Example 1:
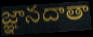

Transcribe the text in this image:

జ్ఞానదాతా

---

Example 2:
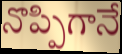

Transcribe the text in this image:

నొప్పిగానే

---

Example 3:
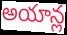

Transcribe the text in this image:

అయాన్ల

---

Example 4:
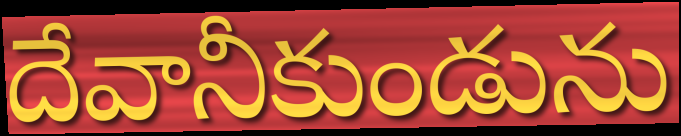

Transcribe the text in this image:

దేవానీకుండును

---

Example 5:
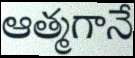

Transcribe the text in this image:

ఆత్మగానే